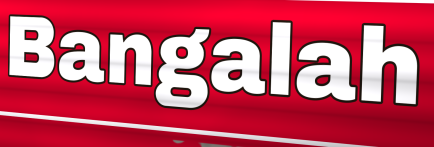
Bangalah